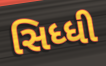
સિધ્ધી